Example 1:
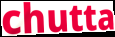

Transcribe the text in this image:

chutta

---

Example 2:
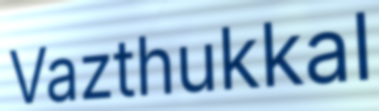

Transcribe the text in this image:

Vazthukkal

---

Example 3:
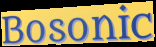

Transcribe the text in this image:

Bosonic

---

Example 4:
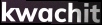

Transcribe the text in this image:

kwachit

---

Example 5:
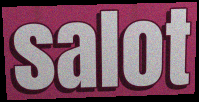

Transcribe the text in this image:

salot